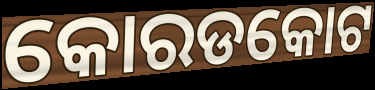
କୋରଡକୋଟ